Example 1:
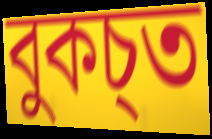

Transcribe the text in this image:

বুকচ্ত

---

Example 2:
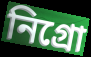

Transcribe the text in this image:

নিগ্ৰো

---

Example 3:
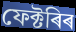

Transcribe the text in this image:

ফেক্টৰিৰ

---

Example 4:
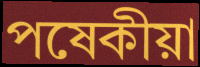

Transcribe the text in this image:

পষেকীয়া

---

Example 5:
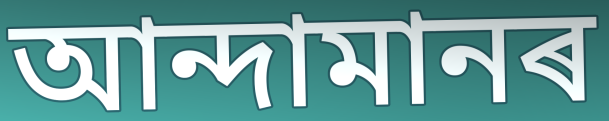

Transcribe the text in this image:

আন্দামানৰ